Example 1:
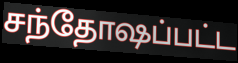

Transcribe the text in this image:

சந்தோஷப்பட்ட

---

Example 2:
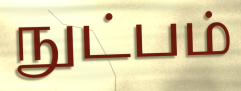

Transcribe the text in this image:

நுட்பம்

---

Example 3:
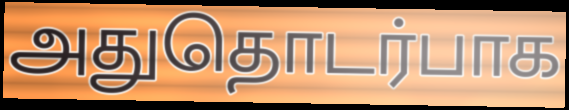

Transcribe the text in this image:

அதுதொடர்பாக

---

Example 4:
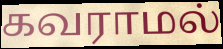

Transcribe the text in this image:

கவராமல்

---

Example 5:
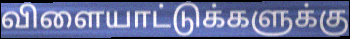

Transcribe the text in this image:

விளையாட்டுக்களுக்கு